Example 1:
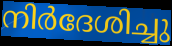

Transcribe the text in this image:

നിർദേശിച്ചു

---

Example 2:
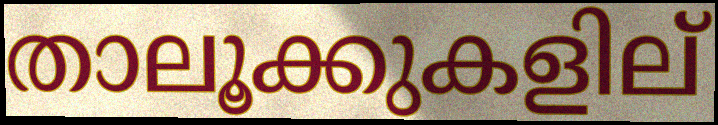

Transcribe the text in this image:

താലൂക്കുകളില്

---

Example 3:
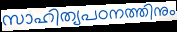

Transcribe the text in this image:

സാഹിത്യപഠനത്തിനും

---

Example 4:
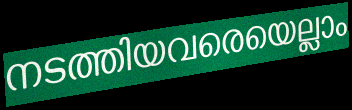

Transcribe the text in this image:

നടത്തിയവരെയെല്ലാം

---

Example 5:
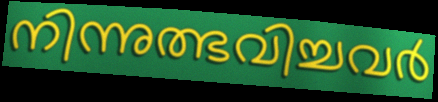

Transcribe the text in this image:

നിന്നുത്ഭവിച്ചവർ